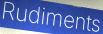
Rudiments